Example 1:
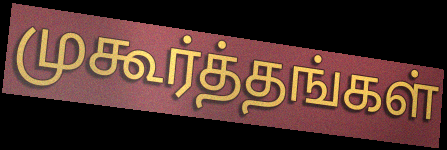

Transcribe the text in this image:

முகூர்த்தங்கள்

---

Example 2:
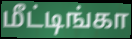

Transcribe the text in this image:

மீட்டிங்கா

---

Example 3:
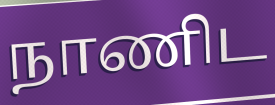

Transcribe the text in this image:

நாணிட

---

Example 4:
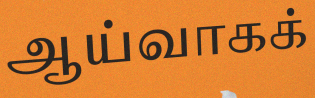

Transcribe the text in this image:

ஆய்வாகக்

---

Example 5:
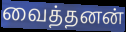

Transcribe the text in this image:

வைத்தனன்